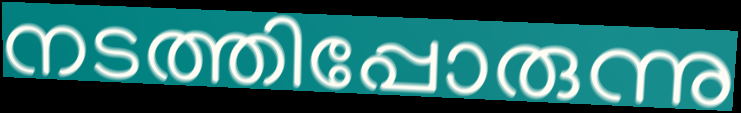
നടത്തിപ്പോരുന്നു